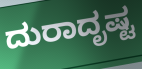
ದುರಾದೃಷ್ಟ